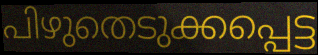
പിഴുതെടുക്കപ്പെട്ട